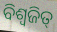
ବିଶ୍ୱଜିତ୍